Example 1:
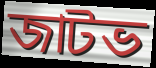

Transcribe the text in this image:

জাটভ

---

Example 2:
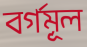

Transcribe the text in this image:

বৰ্গমূল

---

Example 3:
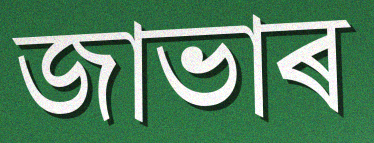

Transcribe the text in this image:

জাভাৰ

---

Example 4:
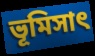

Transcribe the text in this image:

ভূমিসাৎ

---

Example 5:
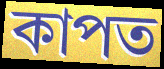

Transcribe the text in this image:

কাপত